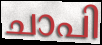
ചാപി